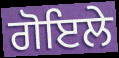
ਗੋਇਲੇ